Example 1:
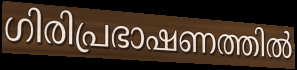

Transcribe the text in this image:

ഗിരിപ്രഭാഷണത്തിൽ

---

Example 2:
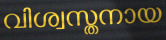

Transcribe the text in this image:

വിശ്വസ്തനായ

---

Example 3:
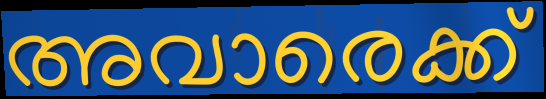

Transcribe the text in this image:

അവാരെക്ക്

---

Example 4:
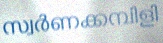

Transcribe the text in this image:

സ്വർണക്കമ്പിളി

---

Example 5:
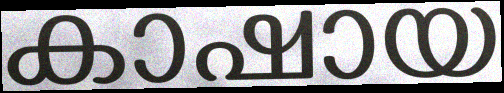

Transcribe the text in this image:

കാഷായ